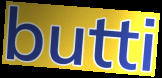
butti